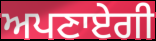
ਅਪਣਾਏਗੀ